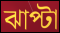
ঝাপ্টা